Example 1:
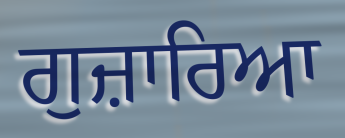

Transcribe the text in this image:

ਗੁਜ਼ਾਰਿਆ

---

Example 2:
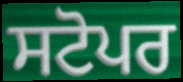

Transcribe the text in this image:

ਸਟੋਪਰ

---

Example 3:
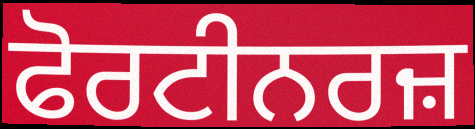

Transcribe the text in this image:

ਫੋਰਟੀਨਰਜ਼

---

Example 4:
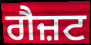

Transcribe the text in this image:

ਗੈਜ਼ਟ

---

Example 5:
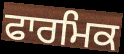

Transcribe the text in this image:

ਫਾਰਮਿਕ